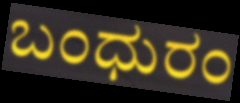
ಬಂಧುರಂ